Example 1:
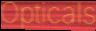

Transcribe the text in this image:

Opticals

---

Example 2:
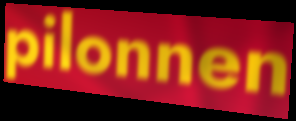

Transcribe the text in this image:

pilonnen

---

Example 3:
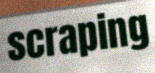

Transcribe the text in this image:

scraping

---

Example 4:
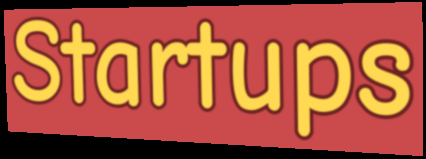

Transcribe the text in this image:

Startups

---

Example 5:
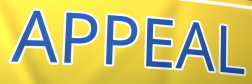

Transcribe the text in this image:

APPEAL